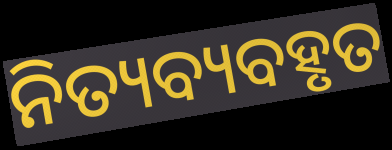
ନିତ୍ୟବ୍ୟବହୃତ